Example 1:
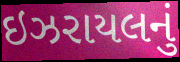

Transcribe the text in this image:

ઇઝરાયલનું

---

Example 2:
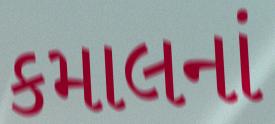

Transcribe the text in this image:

કમાલનાં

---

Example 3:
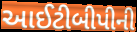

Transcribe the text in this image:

આઈટીબીપીની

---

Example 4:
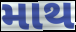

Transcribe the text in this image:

માથ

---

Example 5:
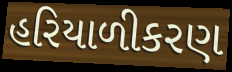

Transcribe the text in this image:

હરિયાળીકરણ